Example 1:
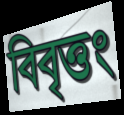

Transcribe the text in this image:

বিবৃত্তং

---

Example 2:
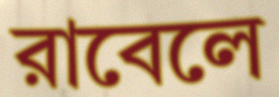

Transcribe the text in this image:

রাবেলে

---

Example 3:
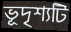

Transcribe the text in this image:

ভূদৃশ্যটি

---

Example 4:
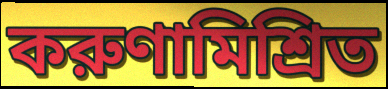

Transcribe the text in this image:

করুণামিশ্রিত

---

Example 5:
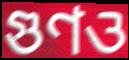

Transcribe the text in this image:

গুণও